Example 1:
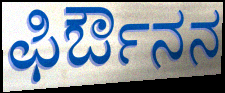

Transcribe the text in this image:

ಫಿರ್ಔನನ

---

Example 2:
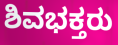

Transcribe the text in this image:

ಶಿವಭಕ್ತರು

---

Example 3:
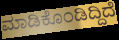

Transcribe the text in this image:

ಮಾಡಿಕೊಂಡಿದ್ದಿದೆ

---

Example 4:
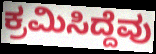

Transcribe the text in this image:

ಕ್ರಮಿಸಿದ್ದೆವು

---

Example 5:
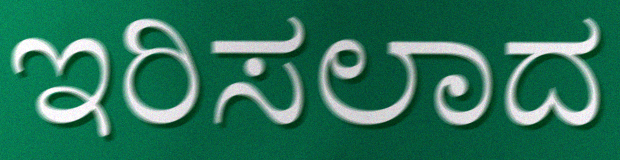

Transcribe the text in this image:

ಇರಿಸಲಾದ